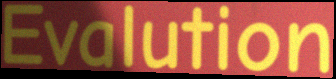
Evalution